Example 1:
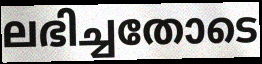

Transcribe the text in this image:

ലഭിച്ചതോടെ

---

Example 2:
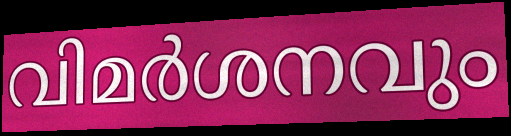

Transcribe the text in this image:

വിമർശനവും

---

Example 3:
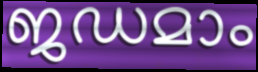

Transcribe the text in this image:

ജഡമാം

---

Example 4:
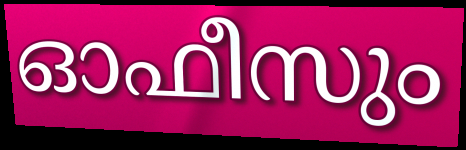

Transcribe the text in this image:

ഓഫീസും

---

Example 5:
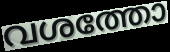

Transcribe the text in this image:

വശത്തോ